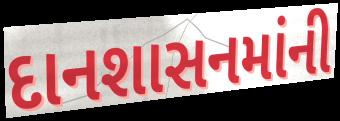
દાનશાસનમાંની